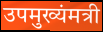
उपमुख्यंमत्री